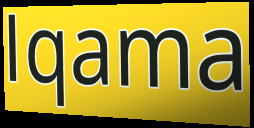
Iqama